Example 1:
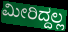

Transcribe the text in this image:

ಮೀರಿದ್ದಲ್ಲ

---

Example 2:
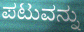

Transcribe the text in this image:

ಪಟುವನ್ನು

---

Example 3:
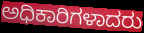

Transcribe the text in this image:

ಅಧಿಕಾರಿಗಳಾದರು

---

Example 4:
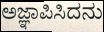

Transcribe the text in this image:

ಅಜ್ಞಾಪಿಸಿದನು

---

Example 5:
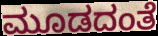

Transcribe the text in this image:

ಮೂಡದಂತೆ